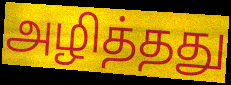
அழித்தது